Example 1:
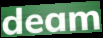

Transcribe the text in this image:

deam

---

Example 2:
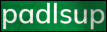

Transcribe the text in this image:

padlsup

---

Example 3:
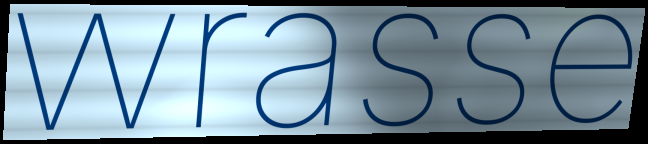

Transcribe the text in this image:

wrasse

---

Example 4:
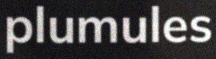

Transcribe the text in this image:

plumules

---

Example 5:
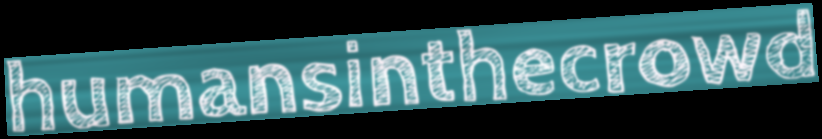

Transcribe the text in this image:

humansinthecrowd